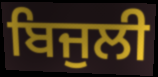
ਬਿਜੁਲੀ